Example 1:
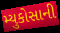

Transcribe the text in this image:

મ્યુકોસાની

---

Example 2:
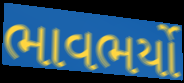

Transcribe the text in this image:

ભાવભર્યો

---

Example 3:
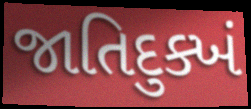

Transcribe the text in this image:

જાતિદુક્ખં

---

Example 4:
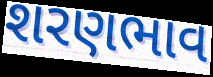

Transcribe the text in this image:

શરણભાવ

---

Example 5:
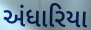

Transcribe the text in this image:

અંધારિયા